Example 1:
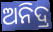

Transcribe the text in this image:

ଅନିଦ୍ର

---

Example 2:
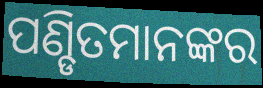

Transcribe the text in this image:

ପଣ୍ଡିତମାନଙ୍କର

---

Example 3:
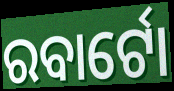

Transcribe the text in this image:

ରବାର୍ଟୋ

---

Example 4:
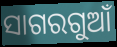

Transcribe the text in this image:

ସାଗରଗୁଆଁ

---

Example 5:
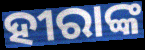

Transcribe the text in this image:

ହୀରାଙ୍କ